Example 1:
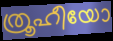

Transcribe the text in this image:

ത്രൂഹീയോ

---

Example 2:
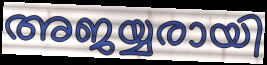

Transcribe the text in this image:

അജയ്യരായി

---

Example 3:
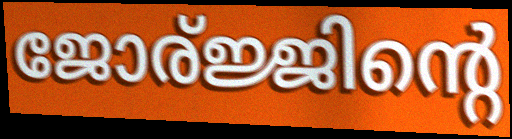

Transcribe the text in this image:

ജോര്ജ്ജിന്റെ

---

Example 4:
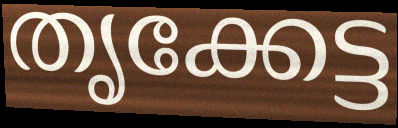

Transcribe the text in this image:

തൃക്കേട്ട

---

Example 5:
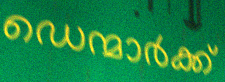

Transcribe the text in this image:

ഡെന്മാർക്ക്